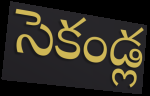
సెకండ్ల